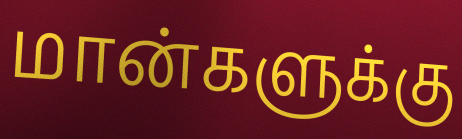
மான்களுக்கு